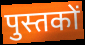
पुस्तकों